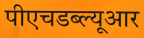
पीएचडब्ल्यूआर